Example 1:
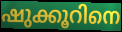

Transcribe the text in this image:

ഷുക്കൂറിനെ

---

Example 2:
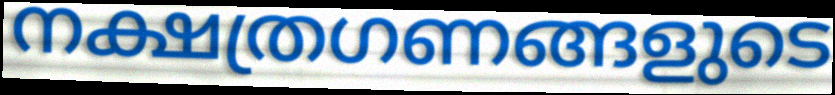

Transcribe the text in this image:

നക്ഷത്രഗണങ്ങളുടെ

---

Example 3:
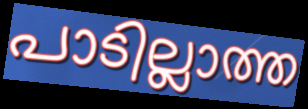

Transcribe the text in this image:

പാടില്ലാത്ത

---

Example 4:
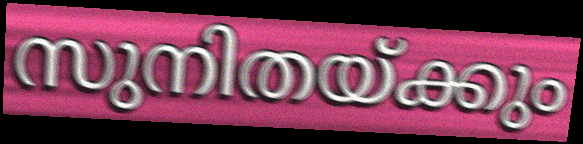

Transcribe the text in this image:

സുനിതയ്ക്കും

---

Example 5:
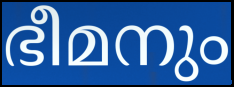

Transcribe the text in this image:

ഭീമനും